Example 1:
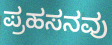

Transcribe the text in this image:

ಪ್ರಹಸನವು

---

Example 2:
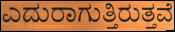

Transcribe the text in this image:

ಎದುರಾಗುತ್ತಿರುತ್ತವೆ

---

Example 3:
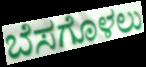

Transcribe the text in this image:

ಬೆಸಗೊಳಲು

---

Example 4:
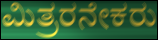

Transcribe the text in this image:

ಮಿತ್ರರನೇಕರು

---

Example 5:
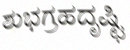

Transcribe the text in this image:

ಶುಭಗ್ರಹದೃಷ್ಟಿ